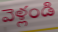
వెళ్లండి